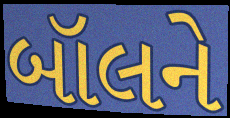
બૉલને